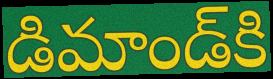
డిమాండ్‌కి